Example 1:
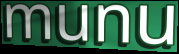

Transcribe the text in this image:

munu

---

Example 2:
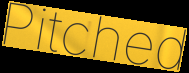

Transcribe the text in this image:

Pitched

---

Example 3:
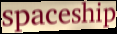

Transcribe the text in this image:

spaceship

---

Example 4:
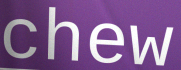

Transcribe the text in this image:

chew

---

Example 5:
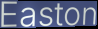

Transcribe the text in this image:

Easton